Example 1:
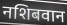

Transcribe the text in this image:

नशिबवान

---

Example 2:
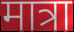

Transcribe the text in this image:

मात्रा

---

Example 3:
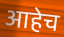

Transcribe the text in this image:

आहेच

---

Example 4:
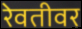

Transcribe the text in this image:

रेवतीवर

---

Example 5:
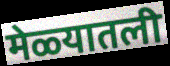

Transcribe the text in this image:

मेळ्यातली